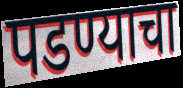
पडण्याचा